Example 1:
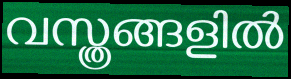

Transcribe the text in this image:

വസ്ത്രങ്ങളിൽ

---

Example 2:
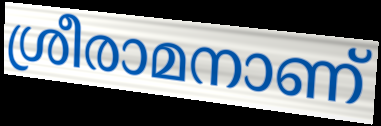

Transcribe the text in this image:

ശ്രീരാമനാണ്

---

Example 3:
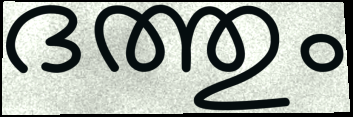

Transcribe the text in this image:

ദത്തും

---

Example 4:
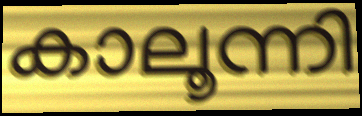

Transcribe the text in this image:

കാലൂന്നി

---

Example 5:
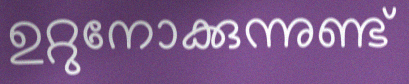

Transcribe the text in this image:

ഉറ്റുനോക്കുന്നുണ്ട്